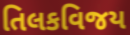
તિલકવિજય